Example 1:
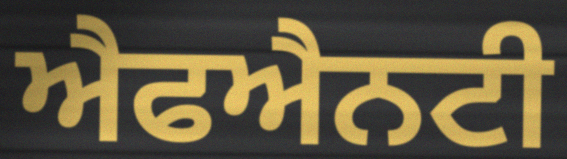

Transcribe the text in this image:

ਐਫਐਨਟੀ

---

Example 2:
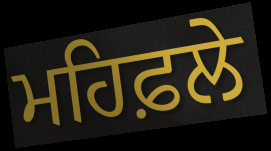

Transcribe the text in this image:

ਮਹਿਫ਼ਲੇ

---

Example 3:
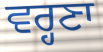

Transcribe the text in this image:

ਵਰ੍ਹਣਾ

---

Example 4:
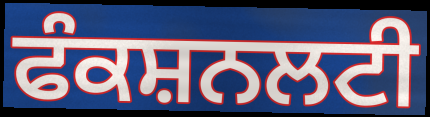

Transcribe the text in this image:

ਫੰਕਸ਼ਨਲਟੀ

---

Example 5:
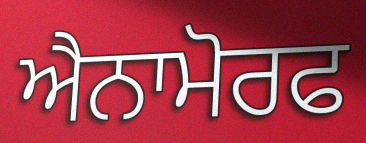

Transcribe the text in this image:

ਐਨਾਮੋਰਫ